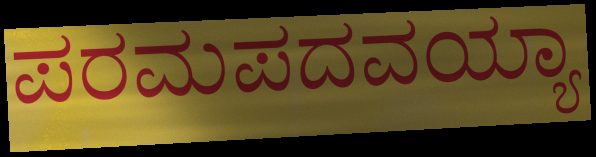
ಪರಮಪದವಯ್ಯಾ